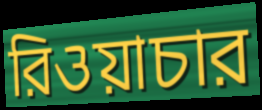
রিওয়াচার